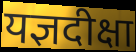
यज्ञदीक्षा